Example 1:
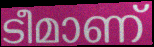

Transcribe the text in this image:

ടീമാണ്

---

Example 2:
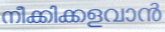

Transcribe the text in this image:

നീക്കിക്കളവാൻ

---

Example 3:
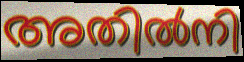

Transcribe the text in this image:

അതിൽനി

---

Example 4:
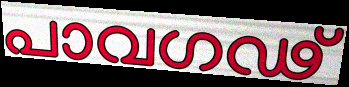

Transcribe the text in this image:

പാവഗഢ്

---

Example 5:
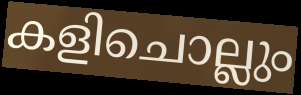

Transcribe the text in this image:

കളിചൊല്ലും